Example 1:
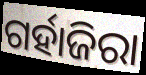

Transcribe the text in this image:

ଗର୍ହାଜିରା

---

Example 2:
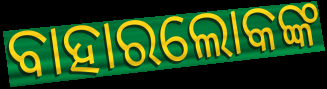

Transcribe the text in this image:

ବାହାରଲୋକଙ୍କ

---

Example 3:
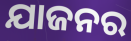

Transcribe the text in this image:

ଯାଜନର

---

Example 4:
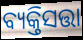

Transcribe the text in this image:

ବ୍ୟକ୍ତିସତ୍ତା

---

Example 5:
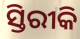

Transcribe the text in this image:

ସ୍ତିରୀକି